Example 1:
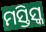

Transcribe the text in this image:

ମସ୍ତିସ୍କ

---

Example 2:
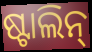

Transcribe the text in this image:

ଷ୍ଟାଲିନ୍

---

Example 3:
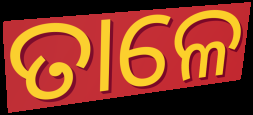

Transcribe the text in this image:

ତାଳେ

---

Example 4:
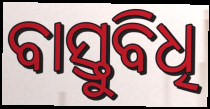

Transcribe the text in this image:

ବାସ୍ତୁବିଧି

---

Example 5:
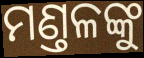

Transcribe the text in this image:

ମଣ୍ତଳଙ୍କୁ